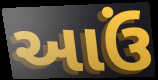
આઉં